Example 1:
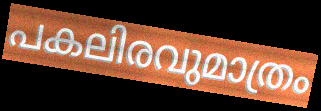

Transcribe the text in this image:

പകലിരവുമാത്രം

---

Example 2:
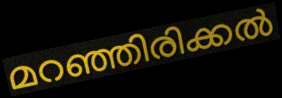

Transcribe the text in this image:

മറഞ്ഞിരിക്കൽ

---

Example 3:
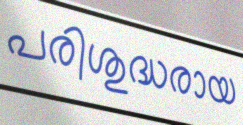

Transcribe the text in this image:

പരിശുദ്ധരായ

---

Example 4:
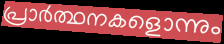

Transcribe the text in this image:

പ്രാർത്ഥനകളൊന്നും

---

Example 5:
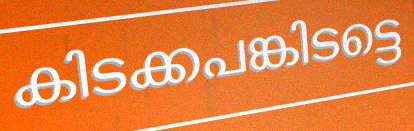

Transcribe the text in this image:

കിടക്കപങ്കിടട്ടെ